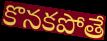
కొనకపోతే